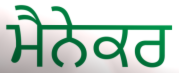
ਮੈਨੇਕਰ